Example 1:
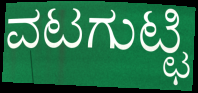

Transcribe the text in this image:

ವಟಗುಟ್ಟಿ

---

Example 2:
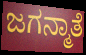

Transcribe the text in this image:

ಜಗನ್ಮಾತೆ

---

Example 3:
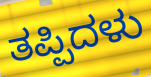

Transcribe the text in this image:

ತಪ್ಪಿದಳು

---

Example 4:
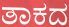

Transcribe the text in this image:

ತಾಕದ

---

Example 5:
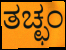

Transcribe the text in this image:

ತಚ್ಛಂ